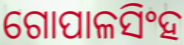
ଗୋପାଳସିଂହ